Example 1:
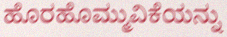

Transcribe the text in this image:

ಹೊರಹೊಮ್ಮುವಿಕೆಯನ್ನು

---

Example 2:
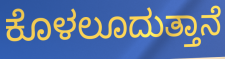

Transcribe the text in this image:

ಕೊಳಲೂದುತ್ತಾನೆ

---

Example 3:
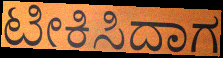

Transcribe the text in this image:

ಟೀಕಿಸಿದಾಗ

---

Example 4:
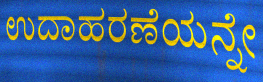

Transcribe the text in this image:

ಉದಾಹರಣೆಯನ್ನೇ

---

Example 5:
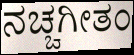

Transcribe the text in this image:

ನಚ್ಚಗೀತಂ